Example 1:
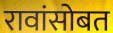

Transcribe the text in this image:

रावांसोबत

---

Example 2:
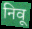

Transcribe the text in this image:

निवू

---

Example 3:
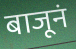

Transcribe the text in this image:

बाजूनं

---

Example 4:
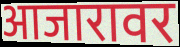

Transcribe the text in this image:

आजारावर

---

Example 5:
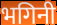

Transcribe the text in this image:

भगिनी